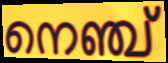
നെഞ്ച്